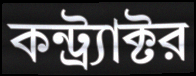
কন্ট্র্যাক্টর